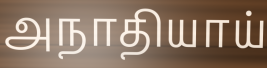
அநாதியாய்